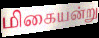
மிகையன்று